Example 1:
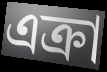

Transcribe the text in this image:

এক্রা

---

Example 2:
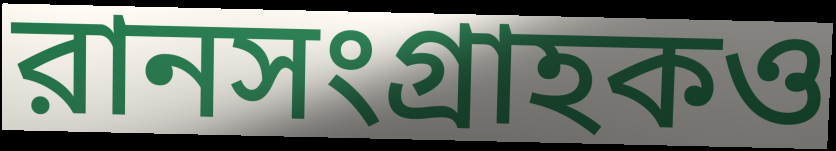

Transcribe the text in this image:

রানসংগ্রাহকও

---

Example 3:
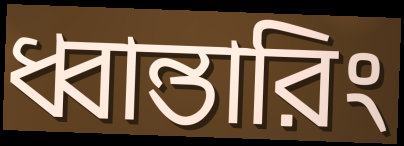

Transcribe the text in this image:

ধ্বান্তারিং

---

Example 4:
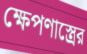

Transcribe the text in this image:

ক্ষেপণাস্ত্রের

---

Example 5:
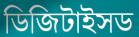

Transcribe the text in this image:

ডিজিটাইসড